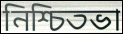
নিশ্চিতভা